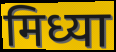
मिध्या